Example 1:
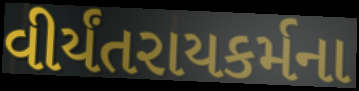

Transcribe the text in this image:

વીર્યંતરાયકર્મના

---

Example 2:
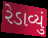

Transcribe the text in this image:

રેડાવ્યું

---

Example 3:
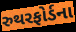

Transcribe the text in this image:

રુથરફોર્ડના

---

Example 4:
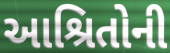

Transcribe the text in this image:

આશ્રિતોની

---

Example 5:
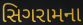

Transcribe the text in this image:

સિગરામના